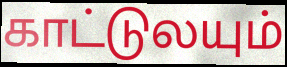
காட்டுலயும்